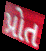
પ્રોત